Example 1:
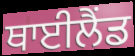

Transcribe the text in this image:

ਥਾਈਲੈਂਡ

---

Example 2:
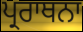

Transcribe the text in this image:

ਪ੍ਰਰਾਥਨਾ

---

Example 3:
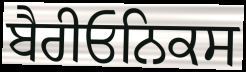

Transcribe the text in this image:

ਬੈਰੀਓਨਿਕਸ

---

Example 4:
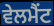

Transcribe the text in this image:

ਵੇਲਮੈਂਟ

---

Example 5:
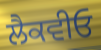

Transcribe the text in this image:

ਲੈਕਵੀਓ